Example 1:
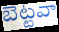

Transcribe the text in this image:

బెట్టవా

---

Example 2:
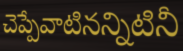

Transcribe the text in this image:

చెప్పేవాటినన్నిటినీ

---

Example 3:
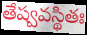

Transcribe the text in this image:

తేష్వవస్థితః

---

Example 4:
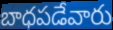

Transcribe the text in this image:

బాధపడేవారు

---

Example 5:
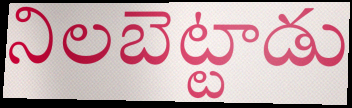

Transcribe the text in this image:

నిలబెట్టాడు